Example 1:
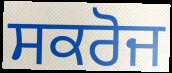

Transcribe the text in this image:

ਸਕਰੋਜ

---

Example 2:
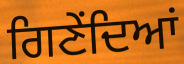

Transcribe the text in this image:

ਗਿਣੇਂਦਿਆਂ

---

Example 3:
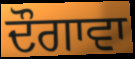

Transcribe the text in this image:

ਦੌਗਾਵਾ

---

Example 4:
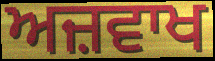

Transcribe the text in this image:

ਅਜ਼ਵਾਖ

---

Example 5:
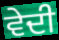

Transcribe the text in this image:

ਵੇਦੀ